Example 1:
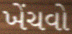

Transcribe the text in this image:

ખેંચવો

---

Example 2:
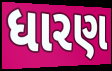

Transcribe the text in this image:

ધારણ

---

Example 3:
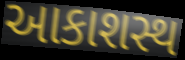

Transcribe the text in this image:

આકાશસ્થ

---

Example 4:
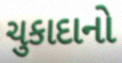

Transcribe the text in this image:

ચુકાદાનો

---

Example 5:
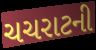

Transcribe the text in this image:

ચચરાટની